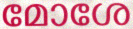
മോശേ